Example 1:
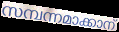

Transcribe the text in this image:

സമ്പന്നമാക്കാന്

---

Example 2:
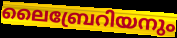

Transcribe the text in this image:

ലൈബ്രേറിയനും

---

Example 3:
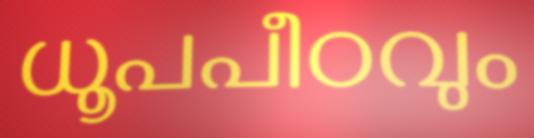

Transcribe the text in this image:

ധൂപപീഠവും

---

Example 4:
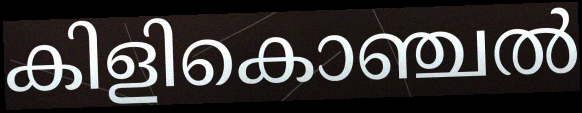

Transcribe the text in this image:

കിളികൊഞ്ചൽ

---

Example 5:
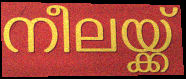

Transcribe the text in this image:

നീലയ്ക്ക്